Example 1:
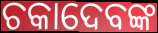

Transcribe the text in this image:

ଚକାଦେବଙ୍କ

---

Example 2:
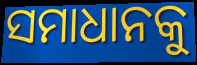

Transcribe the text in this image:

ସମାଧାନକୁ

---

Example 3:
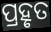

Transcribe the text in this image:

ପ୍ରହୃତ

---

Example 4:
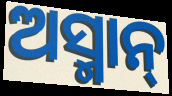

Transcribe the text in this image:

ଅସ୍ମାନ୍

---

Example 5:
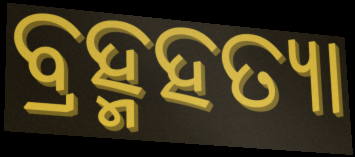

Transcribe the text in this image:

ବ୍ରହ୍ମହତ୍ୟା